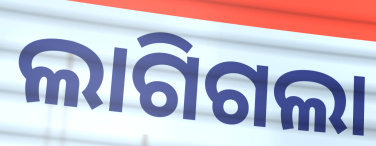
ଲାଗିଗଲା